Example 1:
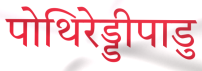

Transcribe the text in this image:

पोथिरेड्डीपाडु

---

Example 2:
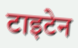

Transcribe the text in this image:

टाइटेन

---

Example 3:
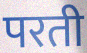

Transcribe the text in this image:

परती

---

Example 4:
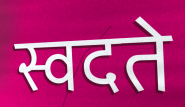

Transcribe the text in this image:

स्वदते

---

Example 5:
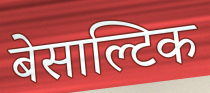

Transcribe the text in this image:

बेसाल्टिक